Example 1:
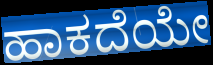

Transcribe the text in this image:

ಹಾಕದೆಯೇ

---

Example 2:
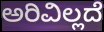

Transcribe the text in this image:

ಅರಿವಿಲ್ಲದೆ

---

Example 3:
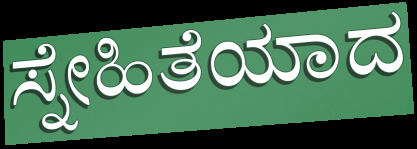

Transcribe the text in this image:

ಸ್ನೇಹಿತೆಯಾದ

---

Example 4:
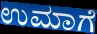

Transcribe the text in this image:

ಉಮಾಗೆ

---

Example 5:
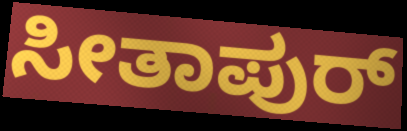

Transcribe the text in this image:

ಸೀತಾಪುರ್